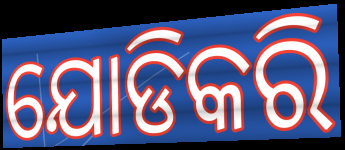
ଯୋଡିକରି